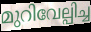
മുറിവേല്പിച്ച